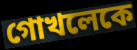
গোখলেকে